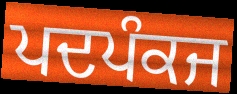
ਪਦਪੰਕਜ